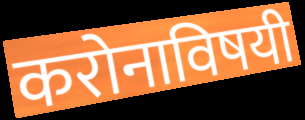
करोनाविषयी